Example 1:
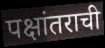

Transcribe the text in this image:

पक्षांतराची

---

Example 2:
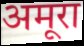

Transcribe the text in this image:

अमूरा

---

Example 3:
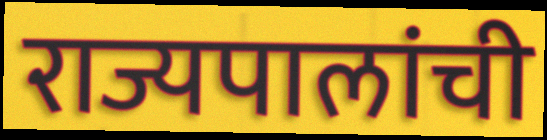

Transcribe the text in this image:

राज्यपालांची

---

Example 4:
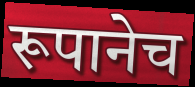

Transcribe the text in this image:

रूपानेच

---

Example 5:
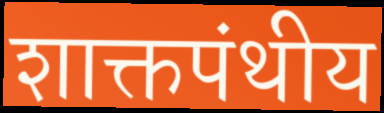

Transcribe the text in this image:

शाक्तपंथीय